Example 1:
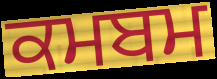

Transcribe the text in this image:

ਕਮਬਮ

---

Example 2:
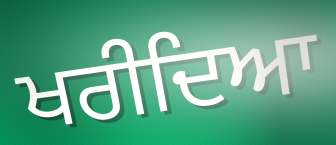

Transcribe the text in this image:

ਖਰੀਦਿਆ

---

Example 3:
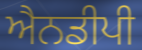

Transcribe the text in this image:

ਐਨਡੀਪੀ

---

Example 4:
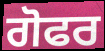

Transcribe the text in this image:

ਗੋਫਰ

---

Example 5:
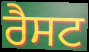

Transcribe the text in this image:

ਰੈਸਟ